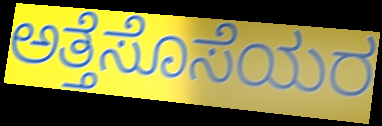
ಅತ್ತೆಸೊಸೆಯರ